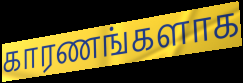
காரணங்களாக